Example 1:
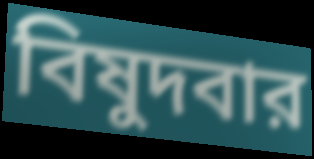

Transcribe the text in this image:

বিষুদবার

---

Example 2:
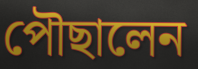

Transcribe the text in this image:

পৌছালেন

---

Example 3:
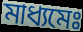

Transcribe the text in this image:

মাধ্যমেঃ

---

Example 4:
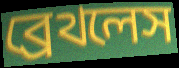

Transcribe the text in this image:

ব্রেথলেস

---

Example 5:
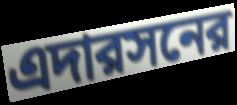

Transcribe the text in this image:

এদারসনের